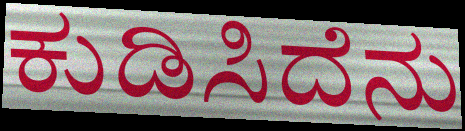
ಕುಡಿಸಿದೆನು